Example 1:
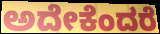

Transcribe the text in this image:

ಅದೇಕೆಂದರೆ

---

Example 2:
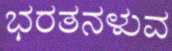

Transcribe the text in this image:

ಭರತನಳುವ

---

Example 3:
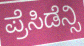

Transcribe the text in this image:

ಪ್ರೆಸಿಡೆನ್ಸಿ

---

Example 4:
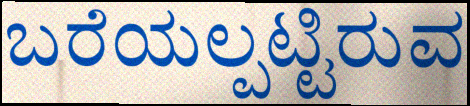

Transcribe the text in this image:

ಬರೆಯಲ್ಪಟ್ಟಿರುವ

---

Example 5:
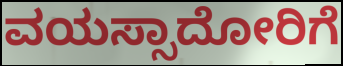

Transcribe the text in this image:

ವಯಸ್ಸಾದೋರಿಗೆ